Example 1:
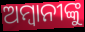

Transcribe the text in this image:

ଅମ୍ବାନୀଙ୍କୁ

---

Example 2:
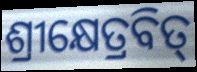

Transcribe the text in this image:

ଶ୍ରୀକ୍ଷେତ୍ରବିତ୍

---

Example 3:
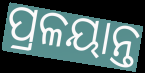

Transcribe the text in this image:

ପ୍ରଳୟାନ୍ତ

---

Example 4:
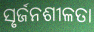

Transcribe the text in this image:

ସୃର୍ଜନଶୀଳତା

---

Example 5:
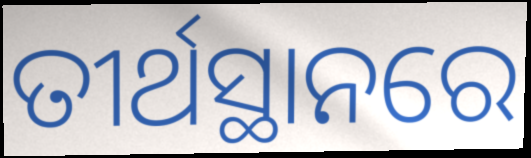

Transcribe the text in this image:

ତୀର୍ଥସ୍ଥାନରେ